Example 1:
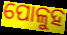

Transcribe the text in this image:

ପୋଳୁହ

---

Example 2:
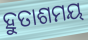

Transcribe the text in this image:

ହୁତାଶମୟ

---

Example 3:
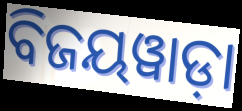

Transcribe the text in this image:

ବିଜୟୱାଡ଼ା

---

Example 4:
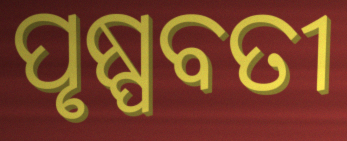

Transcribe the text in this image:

ପୃଷ୍ପବତୀ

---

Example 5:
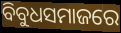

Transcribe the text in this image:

ବିବୁଧସମାଜରେ